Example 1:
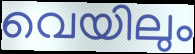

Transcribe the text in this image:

വെയിലും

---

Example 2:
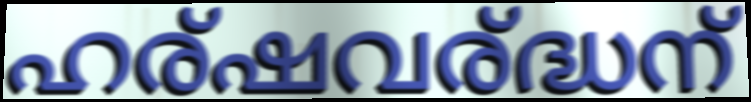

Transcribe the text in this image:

ഹര്ഷവര്ദ്ധന്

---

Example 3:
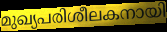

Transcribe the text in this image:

മുഖ്യപരിശീലകനായി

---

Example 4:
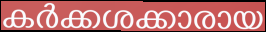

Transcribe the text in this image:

കർക്കശക്കാരായ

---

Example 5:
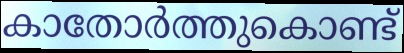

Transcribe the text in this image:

കാതോർത്തുകൊണ്ട്